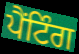
ਪੈਂਟਿੰਗ